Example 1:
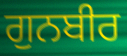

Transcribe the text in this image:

ਗੁਨਬੀਰ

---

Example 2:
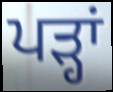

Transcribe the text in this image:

ਪੜ੍ਹਾਂ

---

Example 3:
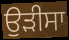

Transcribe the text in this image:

ਉਡ਼ੀਸਾ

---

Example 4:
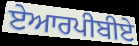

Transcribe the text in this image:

ਏਆਰਪੀਬੀਏ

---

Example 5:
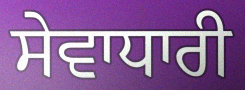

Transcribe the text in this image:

ਸੇਵਾਧਾਰੀ